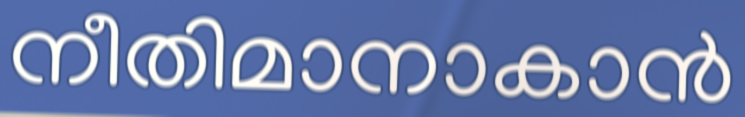
നീതിമാനാകാൻ